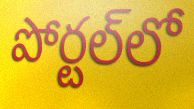
పోర్టల్‌లో